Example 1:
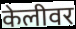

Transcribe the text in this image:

केलीवर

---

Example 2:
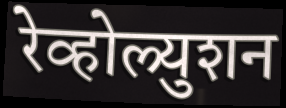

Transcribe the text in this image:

रेव्होल्युशन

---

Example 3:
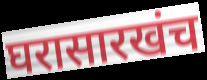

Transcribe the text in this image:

घरासारखंच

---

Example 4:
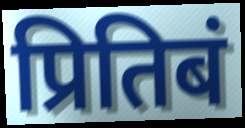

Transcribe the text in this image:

प्रितिबं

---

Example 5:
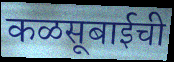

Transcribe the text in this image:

कळसूबाईची